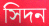
সিদন